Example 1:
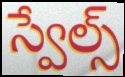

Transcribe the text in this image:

స్వేల్స్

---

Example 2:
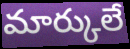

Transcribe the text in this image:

మార్కులే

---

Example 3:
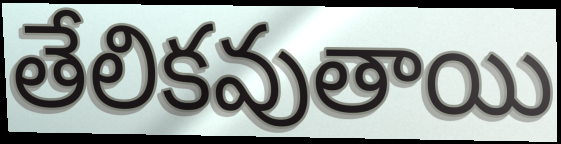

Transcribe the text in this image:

తేలికవుతాయి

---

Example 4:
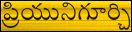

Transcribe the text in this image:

ప్రియునిగూర్చి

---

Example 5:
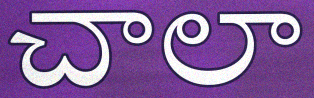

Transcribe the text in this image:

చాలా